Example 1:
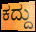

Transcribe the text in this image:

ಕದ್ದು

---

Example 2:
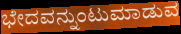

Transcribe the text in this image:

ಭೇದವನ್ನುಂಟುಮಾಡುವ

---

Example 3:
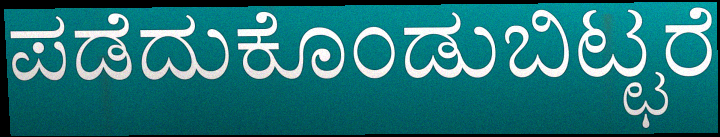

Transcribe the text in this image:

ಪಡೆದುಕೊಂಡುಬಿಟ್ಟರೆ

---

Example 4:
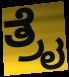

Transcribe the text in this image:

ತ್ರೈ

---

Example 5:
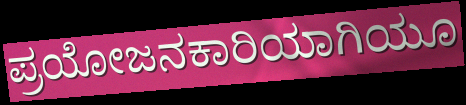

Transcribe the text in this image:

ಪ್ರಯೋಜನಕಾರಿಯಾಗಿಯೂ